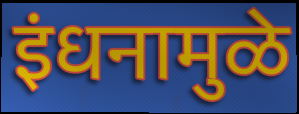
इंधनामुळे